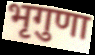
भृगुणा